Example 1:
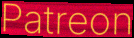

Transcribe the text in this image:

Patreon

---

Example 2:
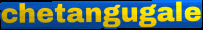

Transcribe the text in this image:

chetangugale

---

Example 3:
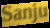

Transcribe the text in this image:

Sanju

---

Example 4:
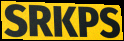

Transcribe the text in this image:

SRKPS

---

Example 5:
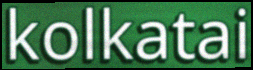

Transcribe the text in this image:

kolkatai